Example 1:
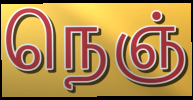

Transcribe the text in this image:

நெஞ்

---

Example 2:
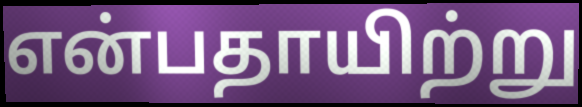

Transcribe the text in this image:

என்பதாயிற்று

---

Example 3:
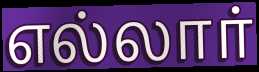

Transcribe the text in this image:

எல்லார்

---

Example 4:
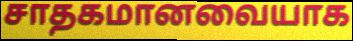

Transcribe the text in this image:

சாதகமானவையாக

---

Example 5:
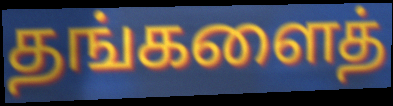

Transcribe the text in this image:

தங்களைத்